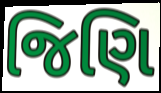
જિણિ